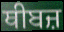
ਥੀਬਜ਼